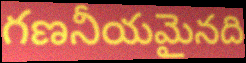
గణనీయమైనది